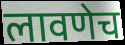
लावणेच